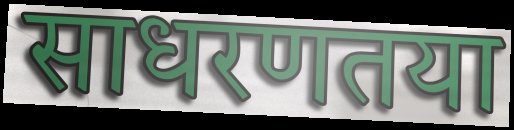
साधरणतया